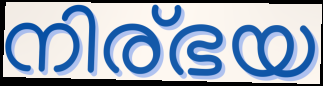
നിര്ഭയ